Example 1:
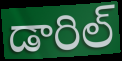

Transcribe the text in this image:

డారిల్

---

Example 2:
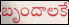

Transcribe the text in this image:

బృందాలకే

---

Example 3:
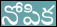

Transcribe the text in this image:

నోపిక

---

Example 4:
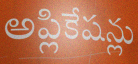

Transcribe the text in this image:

అప్లికేషన్లు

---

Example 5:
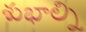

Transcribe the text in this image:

శుభాల్ని